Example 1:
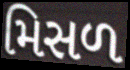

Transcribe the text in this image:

મિસળ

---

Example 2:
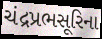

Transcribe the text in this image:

ચંદ્રપ્રભસૂરિના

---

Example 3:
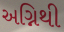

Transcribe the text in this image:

અગ્નિથી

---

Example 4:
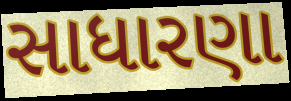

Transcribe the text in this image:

સાધારણા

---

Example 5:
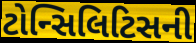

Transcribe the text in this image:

ટોન્સિલિટિસની